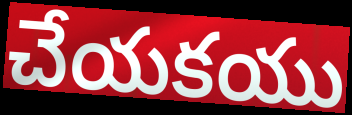
చేయకయు